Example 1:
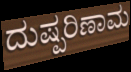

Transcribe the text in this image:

ದುಷ್ಪರಿಣಾಮ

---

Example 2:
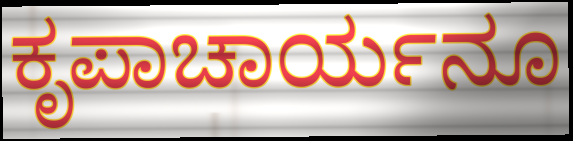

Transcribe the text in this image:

ಕೃಪಾಚಾರ್ಯನೂ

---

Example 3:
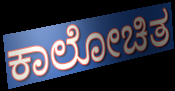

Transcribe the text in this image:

ಕಾಲೋಚಿತ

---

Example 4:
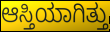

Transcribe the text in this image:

ಆಸ್ತಿಯಾಗಿತ್ತು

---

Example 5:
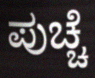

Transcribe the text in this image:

ಪುಚ್ಚೆ